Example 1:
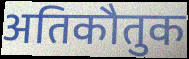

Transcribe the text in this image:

अतिकौतुक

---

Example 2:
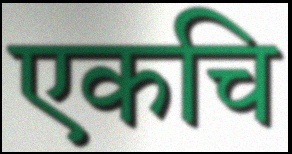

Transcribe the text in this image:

एकचि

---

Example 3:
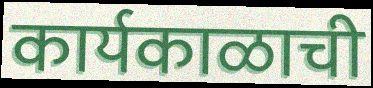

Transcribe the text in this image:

कार्यकाळाची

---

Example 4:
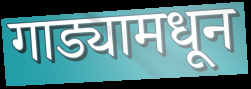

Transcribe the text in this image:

गाड्यामधून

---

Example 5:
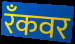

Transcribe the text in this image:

रँकवर